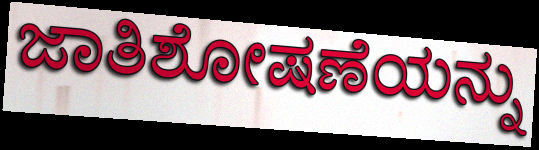
ಜಾತಿಶೋಷಣೆಯನ್ನು